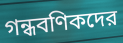
গন্ধবণিকদের